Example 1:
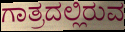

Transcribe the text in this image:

ಗಾತ್ರದಲ್ಲಿರುವ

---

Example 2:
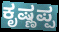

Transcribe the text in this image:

ಕೃಷ್ಣಪ್ಪ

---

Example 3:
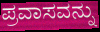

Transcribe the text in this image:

ಪ್ರವಾಸವನ್ನು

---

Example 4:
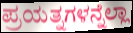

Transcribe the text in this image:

ಪ್ರಯತ್ನಗಳನ್ನೆಲ್ಲಾ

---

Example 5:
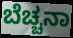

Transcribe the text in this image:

ಬೆಚ್ಚನಾ